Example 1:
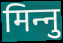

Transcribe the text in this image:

मिन्नु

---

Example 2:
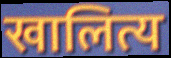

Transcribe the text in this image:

खालित्य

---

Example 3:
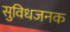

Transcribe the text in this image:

सुविधजनक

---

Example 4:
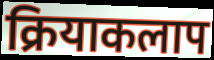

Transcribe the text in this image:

क्रियाकलाप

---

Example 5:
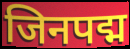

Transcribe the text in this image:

जिनपद्म